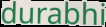
durabhi